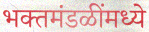
भक्तमंडळींमध्ये